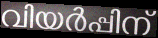
വിയർപ്പിന്